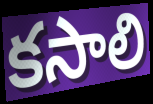
కసాలి